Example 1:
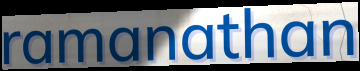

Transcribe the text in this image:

ramanathan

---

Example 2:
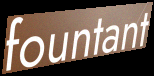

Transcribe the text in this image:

fountant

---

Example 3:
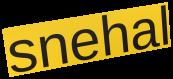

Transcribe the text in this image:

snehal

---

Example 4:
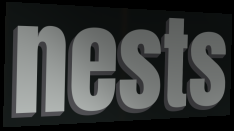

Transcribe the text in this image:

nests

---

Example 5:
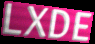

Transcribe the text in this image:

LXDE